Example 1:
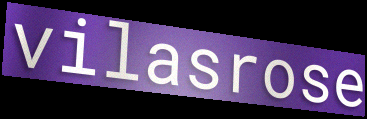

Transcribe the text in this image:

vilasrose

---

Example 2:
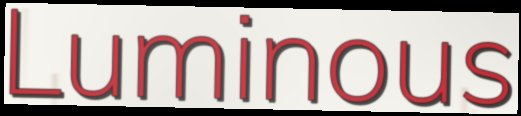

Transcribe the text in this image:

Luminous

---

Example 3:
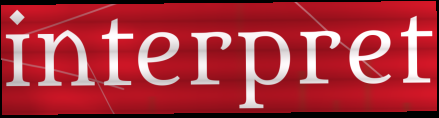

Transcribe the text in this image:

interpret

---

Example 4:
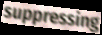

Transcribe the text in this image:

suppressing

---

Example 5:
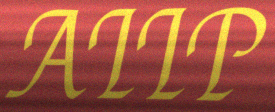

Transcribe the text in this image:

AIIP